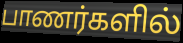
பாணர்களில்